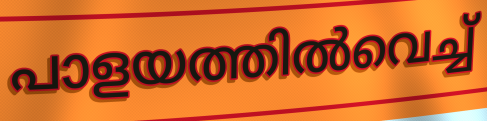
പാളയത്തിൽവെച്ച്